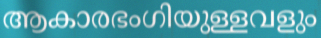
ആകാരഭംഗിയുള്ളവളും